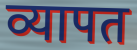
व्यापत